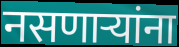
नसणाऱ्यांना